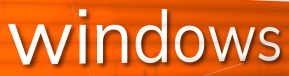
windows